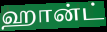
ஹான்ட்